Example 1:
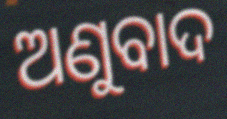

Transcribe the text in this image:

ଅଣୁବାଦ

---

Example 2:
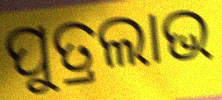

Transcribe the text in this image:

ପୁତ୍ରଲାଭ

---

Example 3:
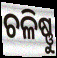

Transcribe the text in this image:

ଚଳିଷ୍ଣୁ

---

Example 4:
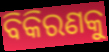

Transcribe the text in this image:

ବିକିରଣକୁ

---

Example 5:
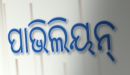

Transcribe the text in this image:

ପାଭିଲିୟନ୍